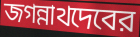
জগন্নাথদেবের